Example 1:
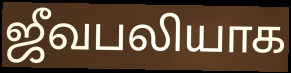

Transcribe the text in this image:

ஜீவபலியாக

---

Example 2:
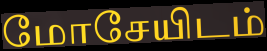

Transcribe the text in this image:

மோசேயிடம்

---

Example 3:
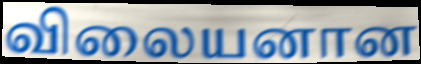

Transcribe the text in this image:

விலையனான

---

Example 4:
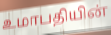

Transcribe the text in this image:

உமாபதியின்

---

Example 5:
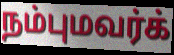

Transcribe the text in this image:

நம்புமவர்க்